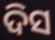
ଦିସ